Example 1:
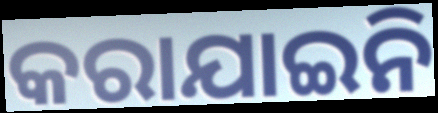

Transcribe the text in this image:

କରାଯାଇନି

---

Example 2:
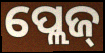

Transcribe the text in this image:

ପ୍ଲେଜ୍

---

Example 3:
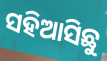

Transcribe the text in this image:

ସହିଆସିଛୁ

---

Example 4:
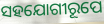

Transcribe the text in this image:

ସହଯୋଗୀରୂପେ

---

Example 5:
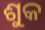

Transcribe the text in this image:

ଶୁକ